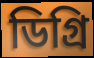
ডিগ্ৰি